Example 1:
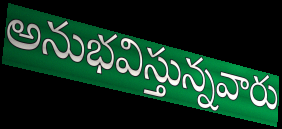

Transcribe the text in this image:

అనుభవిస్తున్నవారు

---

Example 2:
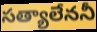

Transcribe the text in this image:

సత్యాలేననీ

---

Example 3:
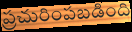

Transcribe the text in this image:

ప్రచురింపబడింది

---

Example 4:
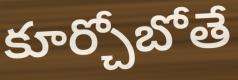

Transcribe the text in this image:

కూర్చోబోతే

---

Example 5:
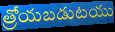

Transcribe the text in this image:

త్రోయబడుటయు